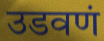
उडवणं